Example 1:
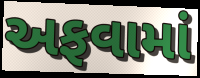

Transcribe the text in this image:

અફવામાં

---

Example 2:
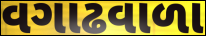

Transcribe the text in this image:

વગાઢવાળા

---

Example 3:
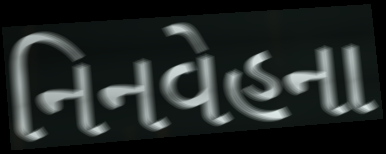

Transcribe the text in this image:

નિનવેહના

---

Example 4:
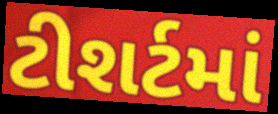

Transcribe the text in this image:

ટીશર્ટમાં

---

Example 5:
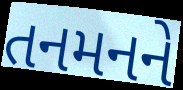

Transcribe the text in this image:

તનમનને